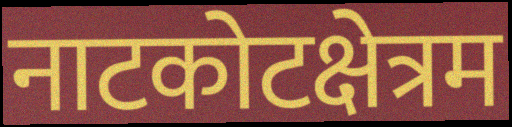
नाटकोटक्षेत्रम